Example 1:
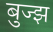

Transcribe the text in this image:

बुज्झ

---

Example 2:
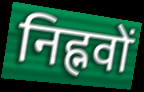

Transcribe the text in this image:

निह्नवों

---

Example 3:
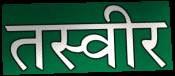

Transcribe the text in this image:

तस्‍वीर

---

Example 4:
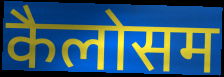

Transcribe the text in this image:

कैलोसम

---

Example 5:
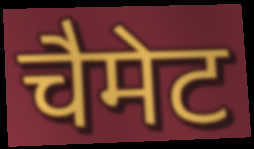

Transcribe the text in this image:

चैमेट